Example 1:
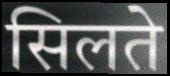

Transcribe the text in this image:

सिलते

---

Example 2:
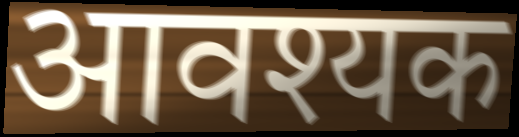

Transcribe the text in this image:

आवश्‍यक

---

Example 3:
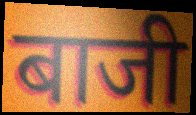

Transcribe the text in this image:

बाजी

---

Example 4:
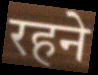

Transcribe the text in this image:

रहने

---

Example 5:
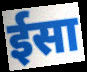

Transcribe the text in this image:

ईसा